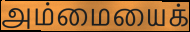
அம்மையைக்